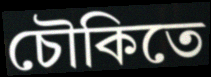
চৌকিতে